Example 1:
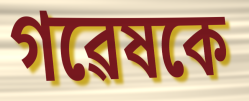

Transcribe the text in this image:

গৱেষকে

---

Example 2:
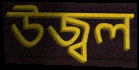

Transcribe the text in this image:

উজ্বল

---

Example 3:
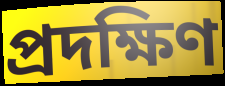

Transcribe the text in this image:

প্ৰদক্ষিণ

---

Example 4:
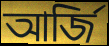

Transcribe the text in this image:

আৰ্জি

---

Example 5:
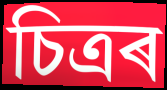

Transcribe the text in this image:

চিত্ৰৰ